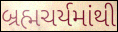
બ્રહ્મચર્યમાંથી